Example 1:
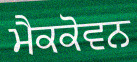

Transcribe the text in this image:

ਮੈਕਕੋਵਨ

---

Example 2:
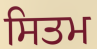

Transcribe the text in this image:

ਸਿਤਮ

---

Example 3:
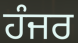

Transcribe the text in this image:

ਹੰਜਰ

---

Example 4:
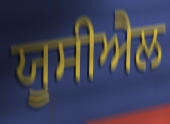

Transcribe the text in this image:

ਯੂਸੀਐਲ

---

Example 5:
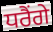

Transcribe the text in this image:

ਧਰੈਂਗੇ